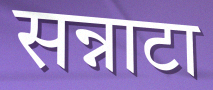
सन्नाटा